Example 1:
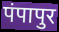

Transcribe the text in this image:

पंपापुर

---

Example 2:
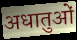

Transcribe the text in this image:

अधातुओं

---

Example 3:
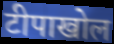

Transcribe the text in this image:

टीपाखोल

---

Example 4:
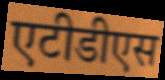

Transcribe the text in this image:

एटीडीएस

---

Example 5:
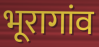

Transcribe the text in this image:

भूरागांव